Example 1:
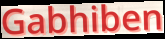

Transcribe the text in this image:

Gabhiben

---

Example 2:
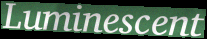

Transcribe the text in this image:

Luminescent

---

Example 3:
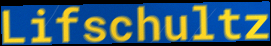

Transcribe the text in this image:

Lifschultz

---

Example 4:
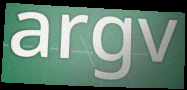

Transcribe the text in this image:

argv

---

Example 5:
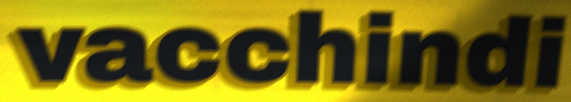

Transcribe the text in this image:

vacchindi